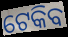
ଟେକିବ